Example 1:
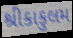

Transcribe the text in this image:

શ્રીકાકુલમ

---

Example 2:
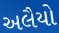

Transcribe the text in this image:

અલૈયો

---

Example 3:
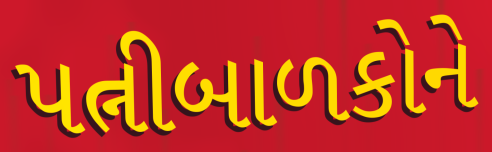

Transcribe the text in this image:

પત્નીબાળકોને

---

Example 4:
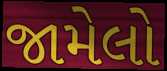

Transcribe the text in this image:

જામેલો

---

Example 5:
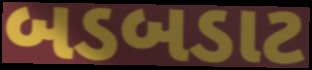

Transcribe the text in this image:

બડબડાટ